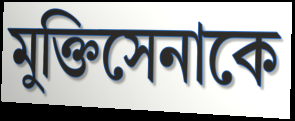
মুক্তিসেনাকে